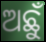
ଅଛୁଁ